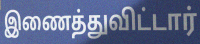
இணைத்துவிட்டார்